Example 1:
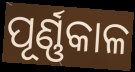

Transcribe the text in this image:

ପୂର୍ଣ୍ଣକାଳ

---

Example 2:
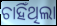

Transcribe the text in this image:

ଚାହିଁଥିଲା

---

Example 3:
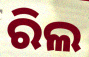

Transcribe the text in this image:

ରିଲ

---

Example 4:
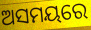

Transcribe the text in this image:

ଅସମୟରେ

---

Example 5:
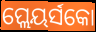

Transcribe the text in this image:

ପ୍ଲେୟର୍ସକୋ